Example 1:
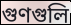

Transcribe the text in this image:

গুণগুলি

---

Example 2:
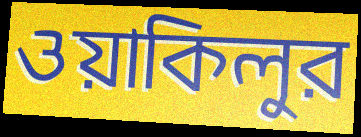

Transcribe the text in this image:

ওয়াকিলুর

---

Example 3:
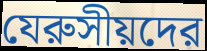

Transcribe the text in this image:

যেরুসীয়দের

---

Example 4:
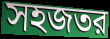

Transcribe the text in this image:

সহজতর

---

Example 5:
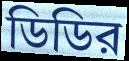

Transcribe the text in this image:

ডিডির